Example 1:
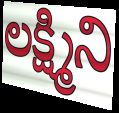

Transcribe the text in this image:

లక్ష్మిని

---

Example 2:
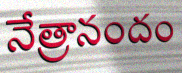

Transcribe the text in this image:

నేత్రానందం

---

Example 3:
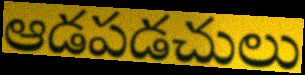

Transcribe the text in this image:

ఆడపడచులు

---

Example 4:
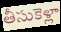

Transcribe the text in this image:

తీసుకెళ్లా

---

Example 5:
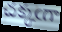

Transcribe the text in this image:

చక్కఁగా